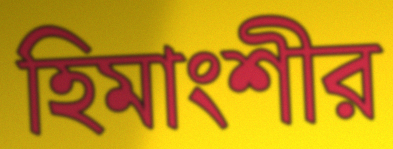
হিমাংশীর